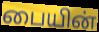
பையின்